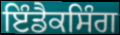
ਇੰਡੈਕਸਿੰਗ